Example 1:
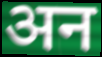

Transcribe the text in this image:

अन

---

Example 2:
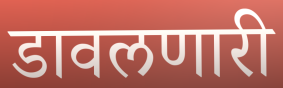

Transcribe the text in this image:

डावलणारी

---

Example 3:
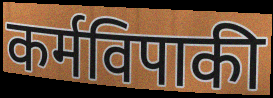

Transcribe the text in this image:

कर्मविपाकी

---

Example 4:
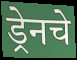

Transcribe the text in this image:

ड्रेनचे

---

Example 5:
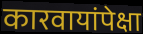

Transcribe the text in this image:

कारवायांपेक्षा